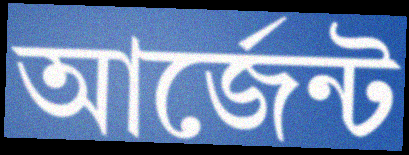
আর্জেন্ট